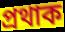
প্ৰথাক